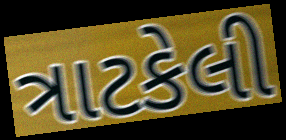
ત્રાટકેલી